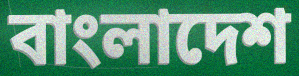
বাংলাদেশ